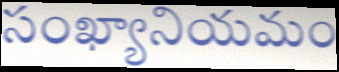
సంఖ్యానియమం